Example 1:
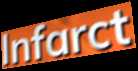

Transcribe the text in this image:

Infarct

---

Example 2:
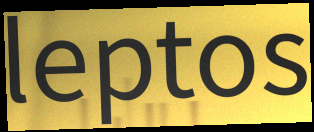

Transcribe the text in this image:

leptos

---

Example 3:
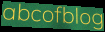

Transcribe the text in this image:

abcofblog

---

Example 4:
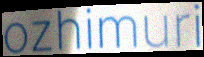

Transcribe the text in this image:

ozhimuri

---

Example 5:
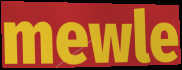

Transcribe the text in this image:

mewle